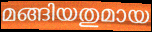
മങ്ങിയതുമായ